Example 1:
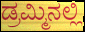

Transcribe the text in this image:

ಡ್ರಮ್ಮಿನಲ್ಲಿ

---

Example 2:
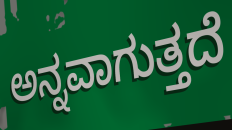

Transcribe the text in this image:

ಅನ್ನವಾಗುತ್ತದೆ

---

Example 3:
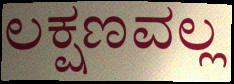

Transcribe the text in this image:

ಲಕ್ಷಣವಲ್ಲ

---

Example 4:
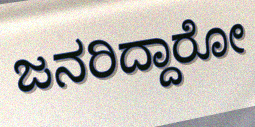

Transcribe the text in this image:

ಜನರಿದ್ದಾರೋ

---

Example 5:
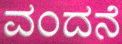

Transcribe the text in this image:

ವಂದನೆ